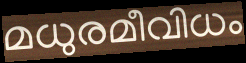
മധുരമീവിധം